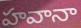
హవానా